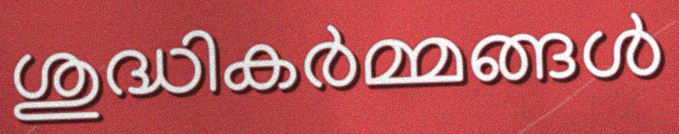
ശുദ്ധികർമ്മങ്ങൾ